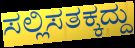
ಸಲ್ಲಿಸತಕ್ಕದ್ದು